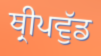
ਥ੍ਰੀਪਵੁੱਡ